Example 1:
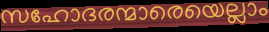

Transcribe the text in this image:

സഹോദരന്മാരെയെല്ലാം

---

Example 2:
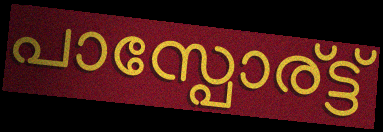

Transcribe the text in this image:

പാസ്പോര്ട്ട്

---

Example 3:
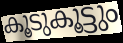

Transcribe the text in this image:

കൂടുകൂട്ടും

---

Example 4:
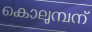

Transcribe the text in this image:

കൊലുമ്പന്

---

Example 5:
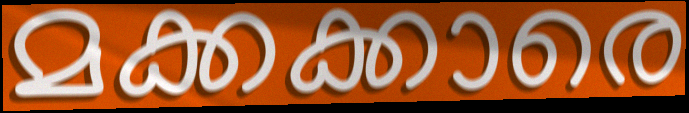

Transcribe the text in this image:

മക്കക്കാരെ